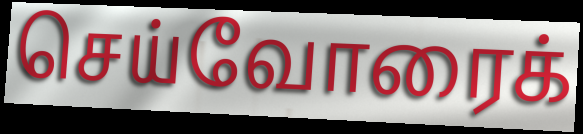
செய்வோரைக்